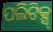
ପଲିଟିକ୍ସ୍